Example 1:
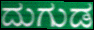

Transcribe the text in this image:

ದುಗುಡ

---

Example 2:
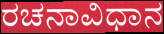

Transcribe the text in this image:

ರಚನಾವಿಧಾನ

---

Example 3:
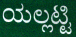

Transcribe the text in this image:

ಯಲ್ಲಟ್ಟಿ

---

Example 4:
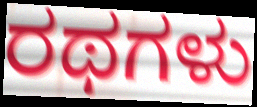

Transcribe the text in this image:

ರಥಗಳು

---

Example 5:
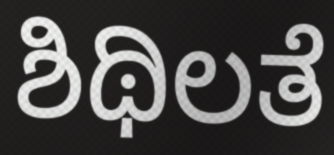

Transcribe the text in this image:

ಶಿಥಿಲತೆ